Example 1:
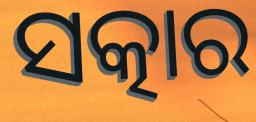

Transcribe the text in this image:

ସତ୍କାର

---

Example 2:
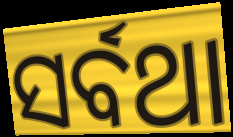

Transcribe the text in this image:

ସର୍ବଥା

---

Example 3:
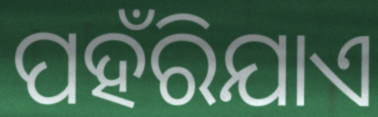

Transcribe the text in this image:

ପହଁରିଯାଏ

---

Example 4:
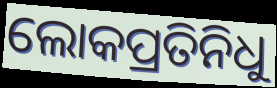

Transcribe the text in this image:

ଲୋକପ୍ରତିନିଧୁ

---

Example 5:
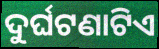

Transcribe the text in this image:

ଦୁର୍ଘଟଣାଟିଏ